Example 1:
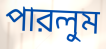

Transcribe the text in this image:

পারলুম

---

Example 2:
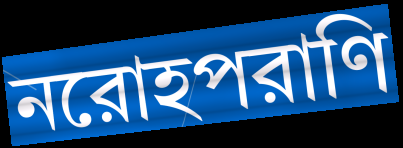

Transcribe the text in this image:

নরোহপরাণি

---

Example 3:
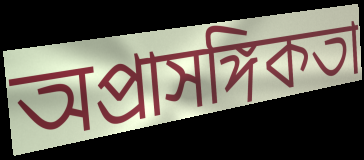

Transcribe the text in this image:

অপ্রাসঙ্গিকতা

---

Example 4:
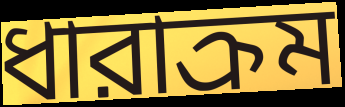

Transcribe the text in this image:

ধারাক্রম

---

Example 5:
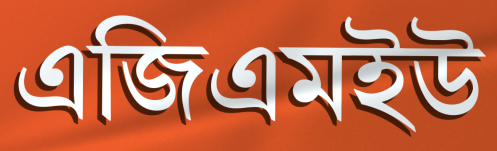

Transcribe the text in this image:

এজিএমইউ